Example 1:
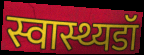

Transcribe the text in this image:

स्वास्थ्यडॉ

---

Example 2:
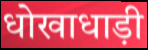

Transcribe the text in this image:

धोखाधाड़ी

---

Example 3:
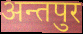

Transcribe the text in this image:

अन्तपुर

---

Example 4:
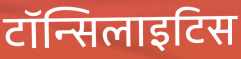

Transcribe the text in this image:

टॉन्सिलाइटिस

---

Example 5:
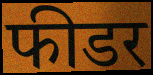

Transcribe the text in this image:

फीडर